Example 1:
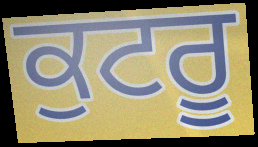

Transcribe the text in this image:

ਕੁਟਰੂ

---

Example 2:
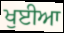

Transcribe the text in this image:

ਖੁਈਆ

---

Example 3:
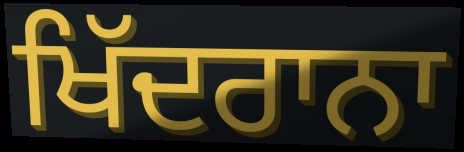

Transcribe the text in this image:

ਖਿੱਦਰਾਨਾ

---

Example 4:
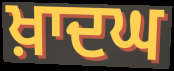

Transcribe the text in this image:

ਖ਼ਾਦਘ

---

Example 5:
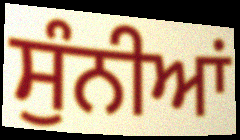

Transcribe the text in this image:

ਸੁੰਨੀਆਂ